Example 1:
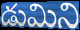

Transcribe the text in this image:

డుమిని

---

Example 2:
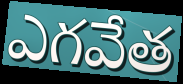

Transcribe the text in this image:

ఎగవేత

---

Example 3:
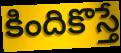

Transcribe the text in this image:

కిందికొస్తే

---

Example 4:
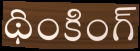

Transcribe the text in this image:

థింకింగ్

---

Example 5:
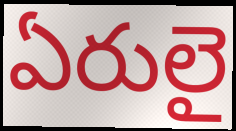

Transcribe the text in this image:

ఏరులై